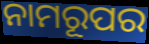
ନାମରୂପର